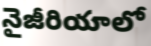
నైజీరియాలో